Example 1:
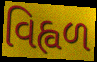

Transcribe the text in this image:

વિહ્વળ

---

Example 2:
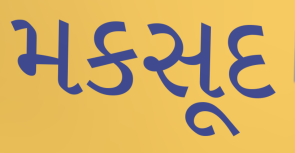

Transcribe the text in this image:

મકસૂદ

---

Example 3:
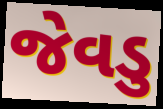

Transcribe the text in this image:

જેવડુ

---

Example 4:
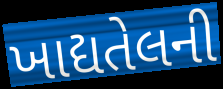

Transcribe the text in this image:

ખાદ્યતેલની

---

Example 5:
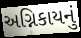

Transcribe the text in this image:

અગ્નિકાયનું